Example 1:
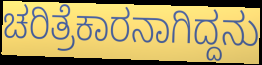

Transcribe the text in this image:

ಚರಿತ್ರೆಕಾರನಾಗಿದ್ದನು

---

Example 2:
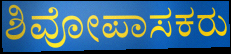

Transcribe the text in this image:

ಶಿವೋಪಾಸಕರು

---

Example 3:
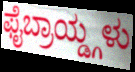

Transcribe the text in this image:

ಫೈಬ್ರಾಯ್ಡ್ಗಳು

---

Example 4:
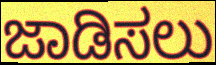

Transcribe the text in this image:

ಜಾಡಿಸಲು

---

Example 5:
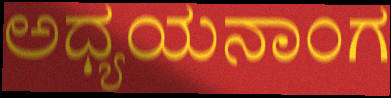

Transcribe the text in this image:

ಅಧ್ಯಯನಾಂಗ